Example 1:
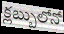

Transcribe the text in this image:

క్లబ్బులోనో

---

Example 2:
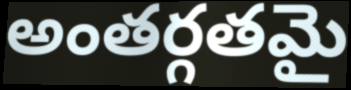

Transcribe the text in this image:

అంతర్గతమై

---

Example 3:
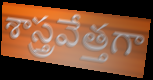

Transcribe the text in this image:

శాస్త్రవేత్తగా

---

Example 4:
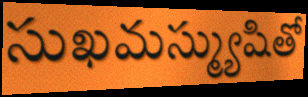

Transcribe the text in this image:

సుఖమస్మ్యుషితో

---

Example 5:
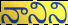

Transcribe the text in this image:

నానిని